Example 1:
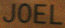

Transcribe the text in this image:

JOEL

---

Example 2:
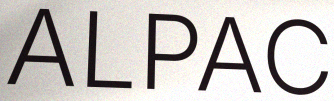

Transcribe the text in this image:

ALPAC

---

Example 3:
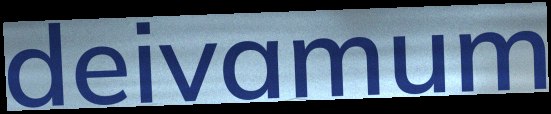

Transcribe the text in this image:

deivamum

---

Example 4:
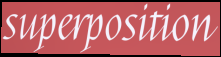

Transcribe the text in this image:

superposition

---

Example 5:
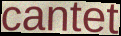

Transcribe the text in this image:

cantet